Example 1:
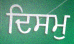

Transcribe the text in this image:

ਦਿਸਮੁ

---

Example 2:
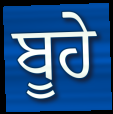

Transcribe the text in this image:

ਬੂਹੇ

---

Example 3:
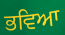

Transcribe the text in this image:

ਭਵਿਆ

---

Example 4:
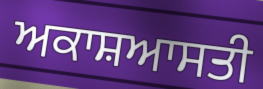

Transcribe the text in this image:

ਅਕਾਸ਼ਆਸਤੀ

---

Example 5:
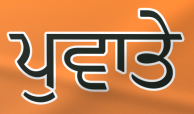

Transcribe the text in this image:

ਪੁਵਾਤੇ